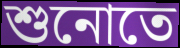
শুনোতে